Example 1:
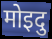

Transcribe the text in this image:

मोइदु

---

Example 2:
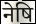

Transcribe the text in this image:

नेषि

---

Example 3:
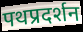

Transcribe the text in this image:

पथप्रदर्शन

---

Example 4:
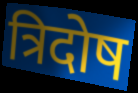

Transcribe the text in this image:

त्रिदोष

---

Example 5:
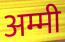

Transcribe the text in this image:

अम्मी